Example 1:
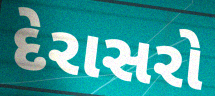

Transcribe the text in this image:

દેરાસરો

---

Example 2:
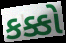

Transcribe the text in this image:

કક્કો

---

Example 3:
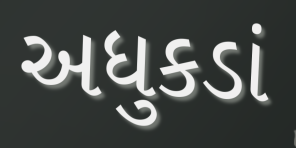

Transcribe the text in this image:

અધુકડાં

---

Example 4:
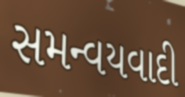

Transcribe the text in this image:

સમન્વયવાદી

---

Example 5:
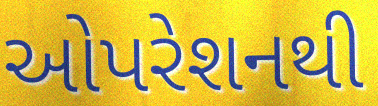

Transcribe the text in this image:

ઓપરેશનથી